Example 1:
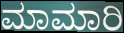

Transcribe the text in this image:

ಮಾಮಾರಿ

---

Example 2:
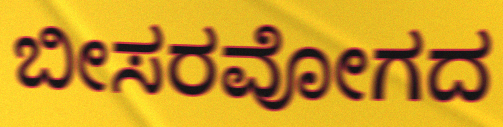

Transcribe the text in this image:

ಬೀಸರವೋಗದ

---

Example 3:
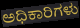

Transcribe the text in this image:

ಅಧಿಕಾರಿಗಳು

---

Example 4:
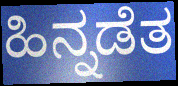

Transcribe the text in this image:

ಹಿನ್ನಡೆತ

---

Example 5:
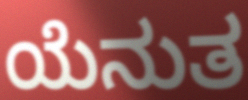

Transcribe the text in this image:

ಯೆನುತ